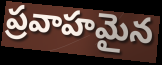
ప్రవాహమైన